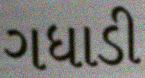
ગધાડી